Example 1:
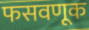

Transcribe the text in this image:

फसवणूक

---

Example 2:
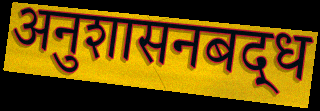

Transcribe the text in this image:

अनुशासनबद्ध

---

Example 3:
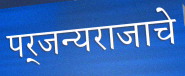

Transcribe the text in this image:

पर्जन्यराजाचे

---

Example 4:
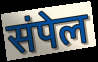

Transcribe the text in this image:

संपेल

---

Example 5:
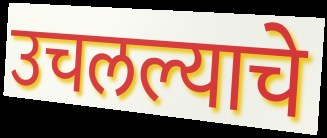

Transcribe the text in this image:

उचलल्याचे